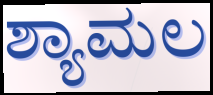
ಶ್ಯಾಮಲ